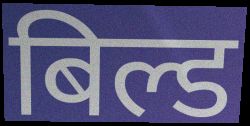
बिल्ड